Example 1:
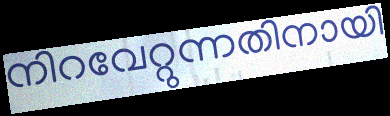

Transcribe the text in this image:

നിറവേറ്റുന്നതിനായി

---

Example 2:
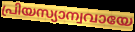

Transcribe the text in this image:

പ്രിയസ്യാന്വവായേ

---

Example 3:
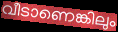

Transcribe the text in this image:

വീടാണെങ്കിലും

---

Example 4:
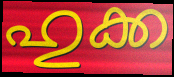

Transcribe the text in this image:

ഹുക്ക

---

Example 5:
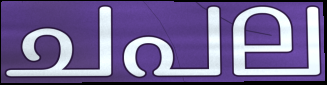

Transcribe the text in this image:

ചപല